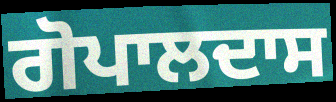
ਗੋਪਾਲਦਾਸ